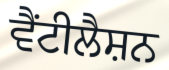
ਵੈਂਟੀਲੈਸ਼ਨ